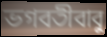
ভগবতীবাবু